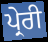
ਪ੍ਰੇਰੀ